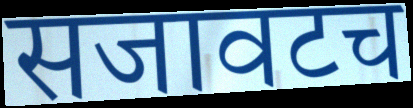
सजावटच